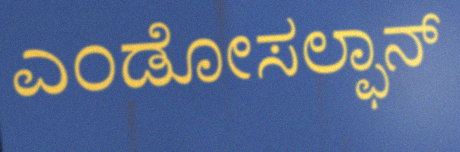
ಎಂಡೋಸಲ್ಫಾನ್